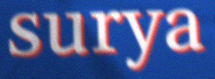
surya